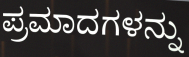
ಪ್ರಮಾದಗಳನ್ನು